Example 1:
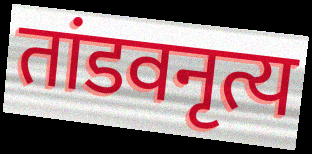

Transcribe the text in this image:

तांडवनृत्य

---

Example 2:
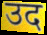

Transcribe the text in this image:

उद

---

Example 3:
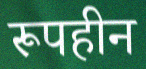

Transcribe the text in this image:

रूपहीन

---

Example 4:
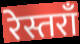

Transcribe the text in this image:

रेस्तराँ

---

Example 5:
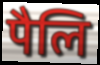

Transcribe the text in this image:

पैलि